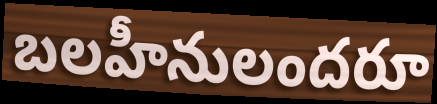
బలహీనులందరూ